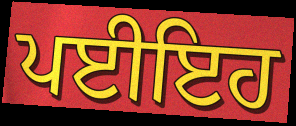
ਪਈਇਹ